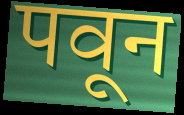
पवून